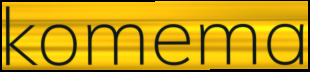
komema